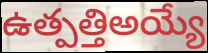
ఉత్పత్తిఅయ్యే